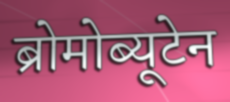
ब्रोमोब्यूटेन